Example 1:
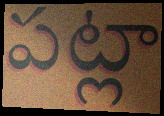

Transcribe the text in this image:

పట్లా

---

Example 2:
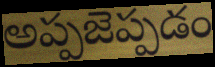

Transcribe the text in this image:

అప్పజెప్పడం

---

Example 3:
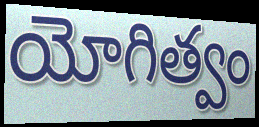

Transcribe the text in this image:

యోగిత్వం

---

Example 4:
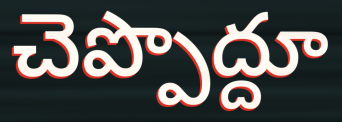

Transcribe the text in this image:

చెప్పొద్దూ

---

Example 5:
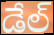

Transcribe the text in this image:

డేల్